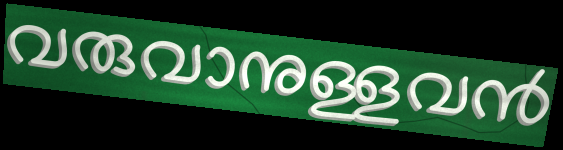
വരുവാനുള്ളവൻ